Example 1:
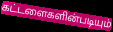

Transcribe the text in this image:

கட்டளைகளின்படியும்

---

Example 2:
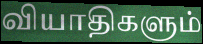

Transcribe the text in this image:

வியாதிகளும்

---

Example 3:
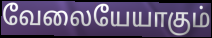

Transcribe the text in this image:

வேலையேயாகும்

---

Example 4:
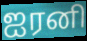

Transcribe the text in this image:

ஐரனி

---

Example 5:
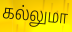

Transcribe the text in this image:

கல்லுமா